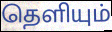
தெளியும்